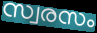
സ്വരസം